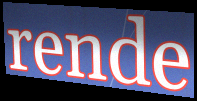
rende